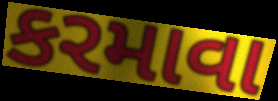
કરમાવા